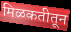
मिळकतीतून